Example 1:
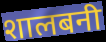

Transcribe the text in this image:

शालबनी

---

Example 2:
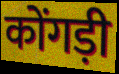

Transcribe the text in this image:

कोंगड़ी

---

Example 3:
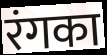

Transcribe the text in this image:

रंगका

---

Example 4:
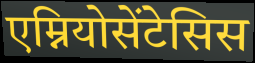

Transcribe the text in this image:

एम्नियोसेंटेसिस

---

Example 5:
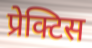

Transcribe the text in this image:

प्रेक्टिस